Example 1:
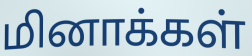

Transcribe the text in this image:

மினாக்கள்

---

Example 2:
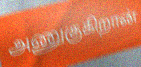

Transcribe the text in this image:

அணுகுகிறான்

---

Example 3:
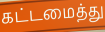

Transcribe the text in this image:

கட்டமைத்து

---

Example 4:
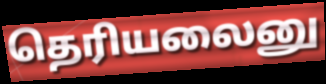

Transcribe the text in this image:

தெரியலைனு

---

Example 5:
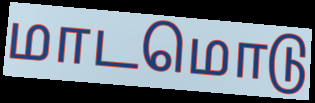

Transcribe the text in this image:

மாடமொடு